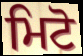
ਮਿਟੋ